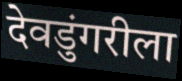
देवडुंगरीला